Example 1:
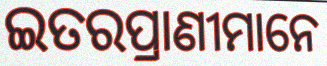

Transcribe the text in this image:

ଇତରପ୍ରାଣୀମାନେ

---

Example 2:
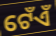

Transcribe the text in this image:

ଟେଁଏଁ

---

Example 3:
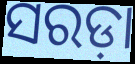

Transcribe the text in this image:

ସରଡ଼ା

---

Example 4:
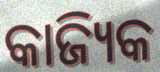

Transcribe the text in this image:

କାଜ୍ୟିକ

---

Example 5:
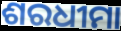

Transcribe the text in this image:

ଶରଧୀମା